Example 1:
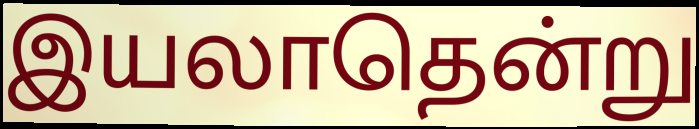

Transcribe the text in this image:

இயலாதென்று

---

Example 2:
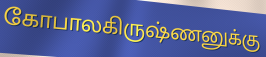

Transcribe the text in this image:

கோபாலகிருஷ்ணனுக்கு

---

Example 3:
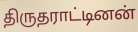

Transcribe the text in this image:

திருதராட்டினன்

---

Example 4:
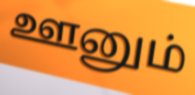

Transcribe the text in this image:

ஊனும்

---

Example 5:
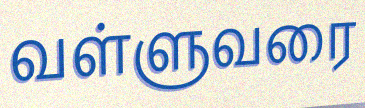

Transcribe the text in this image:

வள்ளுவரை